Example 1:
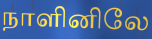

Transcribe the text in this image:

நாளினிலே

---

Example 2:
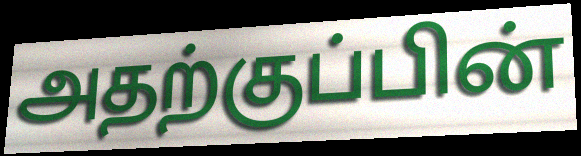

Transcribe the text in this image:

அதற்குப்பின்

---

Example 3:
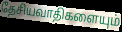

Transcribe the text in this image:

தேசியவாதிகளையும்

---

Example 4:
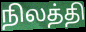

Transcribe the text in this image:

நிலத்தி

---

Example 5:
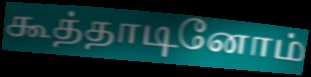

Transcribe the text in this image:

கூத்தாடினோம்